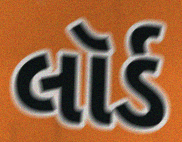
લૉર્ડ